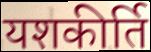
यशकीर्ति